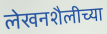
लेखनशैलीच्या